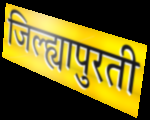
जिल्ह्यापुरती